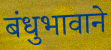
बंधुभावाने